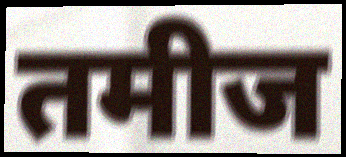
तमीज